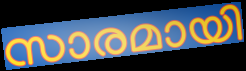
സാരമായി